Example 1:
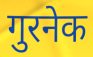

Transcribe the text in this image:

गुरनेक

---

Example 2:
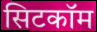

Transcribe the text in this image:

सिटकॉम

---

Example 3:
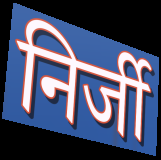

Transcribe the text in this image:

निर्जी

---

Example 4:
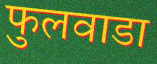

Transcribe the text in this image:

फुलवाडा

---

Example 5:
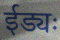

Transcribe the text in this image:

ईड्यः